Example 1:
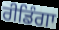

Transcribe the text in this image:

ਰੀਡਿੰਗਾ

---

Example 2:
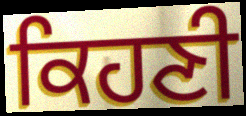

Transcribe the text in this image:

ਕਿਹਣੀ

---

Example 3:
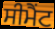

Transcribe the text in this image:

ਸੀਮੈਂਟ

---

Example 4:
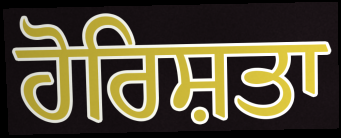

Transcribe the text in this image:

ਹੋਰਿਸ਼ਤਾ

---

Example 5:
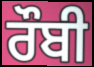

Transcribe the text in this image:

ਰੌਬੀ